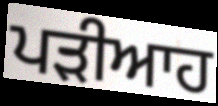
ਪੜੀਆਹ